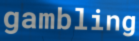
gambling